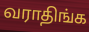
வராதிங்க